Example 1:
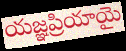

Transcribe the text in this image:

యజ్ఞప్రియాయై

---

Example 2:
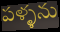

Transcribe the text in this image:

పళ్ళను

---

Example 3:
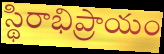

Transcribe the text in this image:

స్థిరాభిప్రాయం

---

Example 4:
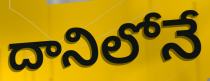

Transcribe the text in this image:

దానిలోనే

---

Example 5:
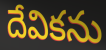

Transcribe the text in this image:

దేవికను